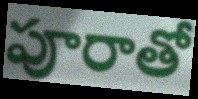
పూరాతో